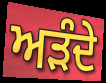
ਅੜੰਦੇ